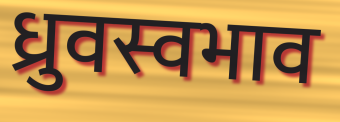
ध्रुवस्वभाव